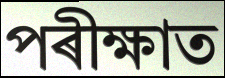
পৰীক্ষাত